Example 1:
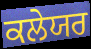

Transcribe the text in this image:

ਕਲੇਯਰ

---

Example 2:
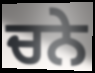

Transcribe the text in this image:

ਚਨੇ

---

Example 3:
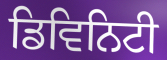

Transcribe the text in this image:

ਡਿਵਿਨਿਟੀ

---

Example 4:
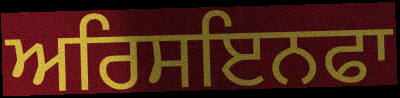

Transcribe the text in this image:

ਅਰਿਸਇਨਫਾ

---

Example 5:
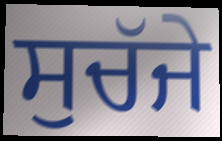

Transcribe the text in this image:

ਸੁਚੱਜੇ